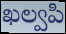
ఖల్వపి